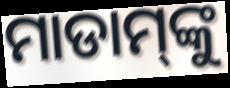
ମାଡାମ୍‌ଙ୍କୁ